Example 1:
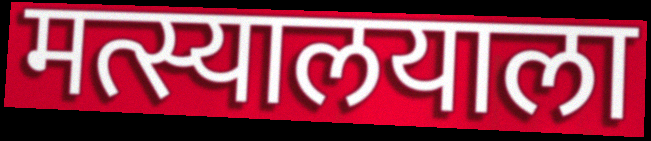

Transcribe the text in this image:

मत्स्यालयाला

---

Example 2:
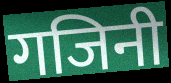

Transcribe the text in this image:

गजिनी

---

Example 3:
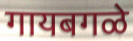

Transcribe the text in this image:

गायबगळे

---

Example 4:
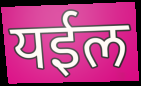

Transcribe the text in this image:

यईल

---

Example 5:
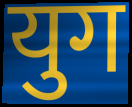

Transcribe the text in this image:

युग